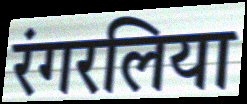
रंगरलिया